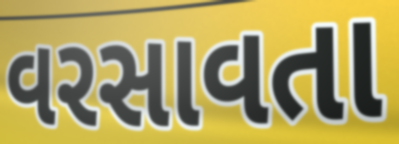
વરસાવતા